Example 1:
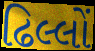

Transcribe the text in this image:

ઢિલ્લોં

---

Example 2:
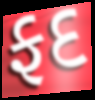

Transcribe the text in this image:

ફદ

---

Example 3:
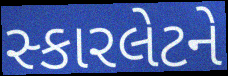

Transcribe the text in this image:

સ્કારલેટને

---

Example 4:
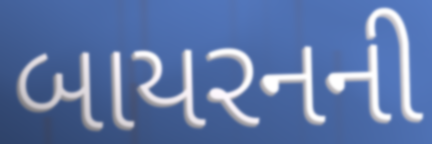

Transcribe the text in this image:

બાયરનની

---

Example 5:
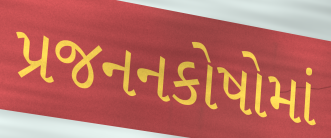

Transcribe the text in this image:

પ્રજનનકોષોમાં